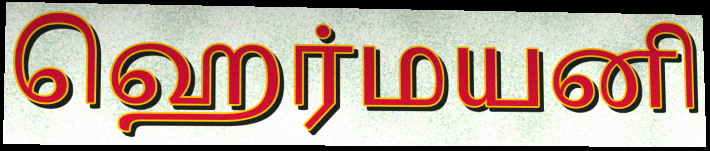
ஹெர்மயனி